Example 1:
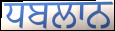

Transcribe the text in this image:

ਧਬਲਾਨ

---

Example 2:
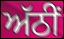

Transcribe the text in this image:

ਅੱਠੀਂ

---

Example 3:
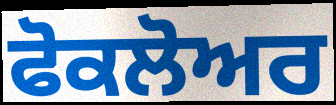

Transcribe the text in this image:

ਫੋਕਲੋਅਰ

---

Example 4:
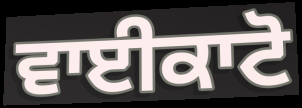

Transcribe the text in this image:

ਵਾਈਕਾਟੋ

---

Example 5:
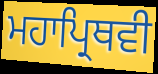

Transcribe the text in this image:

ਮਹਾਪ੍ਰਿਥਵੀ